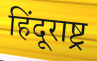
हिंदूराष्ट्र